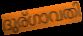
ദുര്ഗാവതി